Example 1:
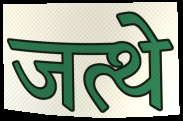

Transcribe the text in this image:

जत्थे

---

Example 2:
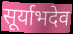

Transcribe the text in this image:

सूर्याभदेव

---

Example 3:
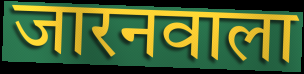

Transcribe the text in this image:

जारनवाला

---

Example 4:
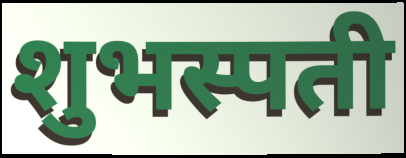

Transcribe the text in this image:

शुभस्पती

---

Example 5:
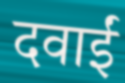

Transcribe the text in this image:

दवाईं